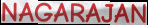
NAGARAJAN